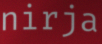
nirja